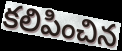
కలిపించిన